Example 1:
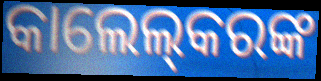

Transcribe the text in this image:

କାଲେଲ୍‌କରଙ୍କ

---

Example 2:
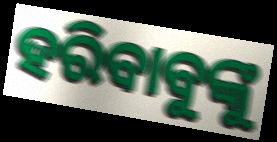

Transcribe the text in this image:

ହରିବାବୁଙ୍କୁ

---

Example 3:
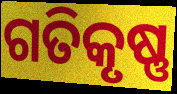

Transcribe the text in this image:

ଗତିକୃଷ୍ଣ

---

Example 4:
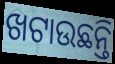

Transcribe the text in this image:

ଖଟାଉଛନ୍ତି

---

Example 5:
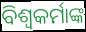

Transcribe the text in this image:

ବିଶ୍ୱକର୍ମାଙ୍କ